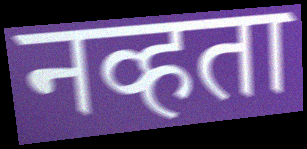
नव्हता